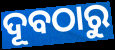
ଦୂବଠାରୁ